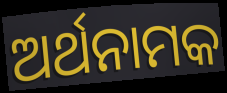
ଅର୍ଥନାମକ